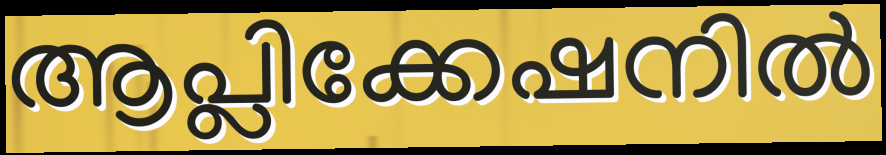
ആപ്ലിക്കേഷനിൽ